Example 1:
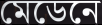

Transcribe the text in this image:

মেডেনে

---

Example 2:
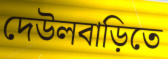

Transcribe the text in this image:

দেউলবাড়িতে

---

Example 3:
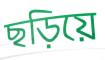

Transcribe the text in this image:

ছড়িয়ে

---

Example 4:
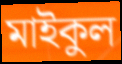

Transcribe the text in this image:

মাইকুল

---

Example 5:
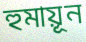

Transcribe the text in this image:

হুমায়ূন